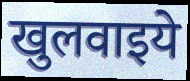
खुलवाइये